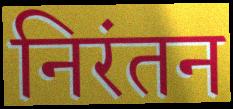
निरंतन